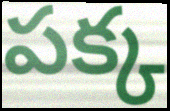
పక్క